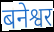
बनेश्वर